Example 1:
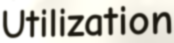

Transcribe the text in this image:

Utilization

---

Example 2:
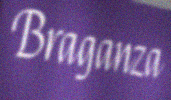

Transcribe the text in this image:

Braganza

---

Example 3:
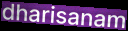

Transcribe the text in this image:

dharisanam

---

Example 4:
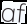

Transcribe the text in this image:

af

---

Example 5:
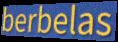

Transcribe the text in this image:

berbelas